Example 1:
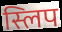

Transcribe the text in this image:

स्लिप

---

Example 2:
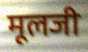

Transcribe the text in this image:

मूलजी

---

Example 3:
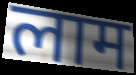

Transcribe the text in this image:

लाम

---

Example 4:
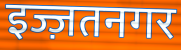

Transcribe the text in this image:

इज्ज़तनगर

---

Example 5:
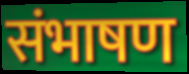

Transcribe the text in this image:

संभाषण